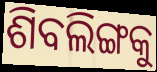
ଶିବଲିଙ୍ଗକୁ